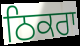
ਠਿਕਰਾ